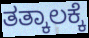
ತತ್ಕಾಲಕ್ಕೆ